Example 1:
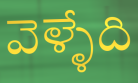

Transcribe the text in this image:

వెళ్ళేది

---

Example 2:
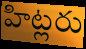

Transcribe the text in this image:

హిట్లరు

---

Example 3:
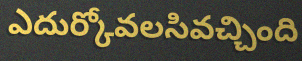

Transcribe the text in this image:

ఎదుర్కోవలసివచ్చింది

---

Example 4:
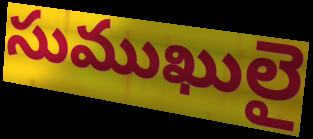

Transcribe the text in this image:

సుముఖులై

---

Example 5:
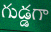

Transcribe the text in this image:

గుడ్డగా